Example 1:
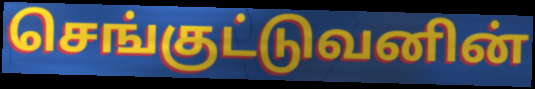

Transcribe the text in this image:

செங்குட்டுவனின்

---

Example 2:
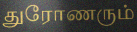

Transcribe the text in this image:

துரோணரும்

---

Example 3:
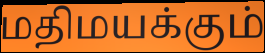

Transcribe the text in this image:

மதிமயக்கும்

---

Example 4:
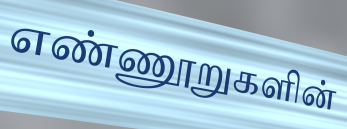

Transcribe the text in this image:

எண்ணூறுகளின்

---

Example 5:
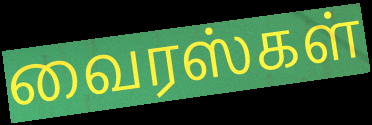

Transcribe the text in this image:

வைரஸ்கள்